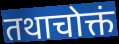
तथाचोक्तं